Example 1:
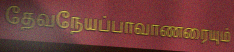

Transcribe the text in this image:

தேவநேயப்பாவாணரையும்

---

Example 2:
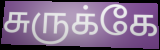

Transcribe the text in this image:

சுருக்கே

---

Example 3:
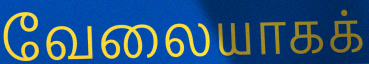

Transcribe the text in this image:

வேலையாகக்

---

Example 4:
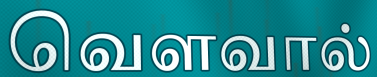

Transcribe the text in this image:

வெளவால்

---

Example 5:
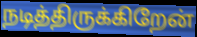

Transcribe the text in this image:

நடித்திருக்கிறேன்